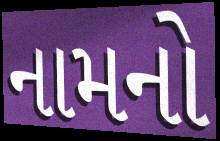
નામનો